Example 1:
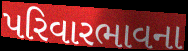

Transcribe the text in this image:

પરિવારભાવના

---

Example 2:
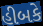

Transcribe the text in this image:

હીબકે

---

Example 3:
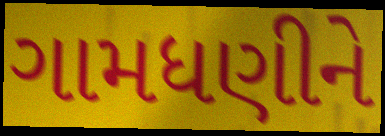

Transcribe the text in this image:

ગામધણીને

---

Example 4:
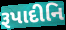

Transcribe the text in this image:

રૂપાદીનિ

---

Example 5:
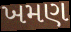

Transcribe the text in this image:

ખમણ